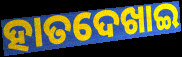
ହାତଦେଖାଇ